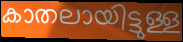
കാതലായിട്ടുള്ള